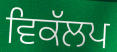
ਵਿਕੱਲਪ